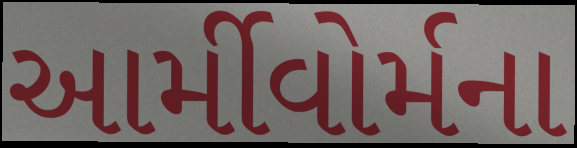
આર્મીવોર્મના